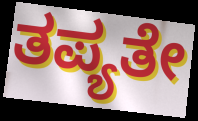
ತಪ್ಯತೇ